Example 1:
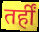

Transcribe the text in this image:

तर्हीं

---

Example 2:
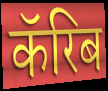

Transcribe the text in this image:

कॅरिब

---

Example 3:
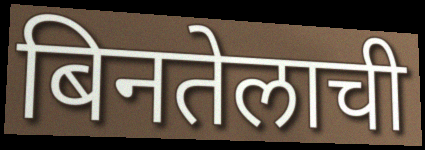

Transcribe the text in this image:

बिनतेलाची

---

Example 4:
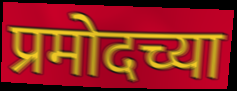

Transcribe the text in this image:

प्रमोदच्या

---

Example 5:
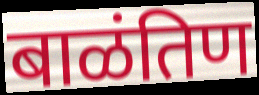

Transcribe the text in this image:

बाळंतिण